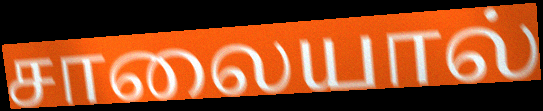
சாலையால்